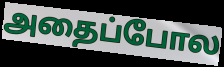
அதைப்போல